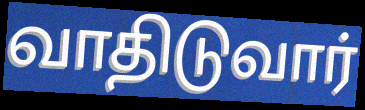
வாதிடுவார்